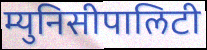
म्युनिसीपालिटी